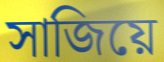
সাজিয়ে